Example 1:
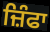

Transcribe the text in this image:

ਜ਼ਿੰਫਾ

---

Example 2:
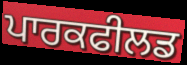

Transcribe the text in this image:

ਪਾਰਕਫੀਲਡ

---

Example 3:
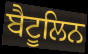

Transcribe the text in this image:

ਬੈਟੂਲਿਨ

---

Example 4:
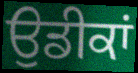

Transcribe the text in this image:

ਉਡੀਕਾਂ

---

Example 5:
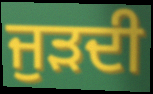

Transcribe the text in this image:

ਜੁੜਦੀ